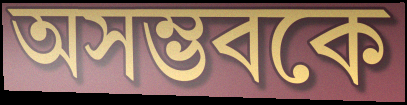
অসম্ভবকে